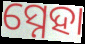
ସ୍ନେହା